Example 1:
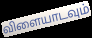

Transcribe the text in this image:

விளையாடவும்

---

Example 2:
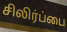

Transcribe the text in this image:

சிலிர்ப்பை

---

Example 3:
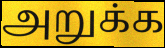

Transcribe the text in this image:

அறுக்க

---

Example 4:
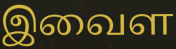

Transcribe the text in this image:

இவைள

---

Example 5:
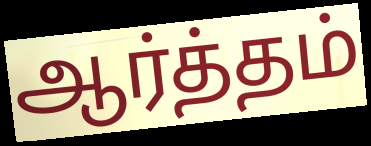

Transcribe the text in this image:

ஆர்த்தம்